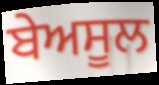
ਬੇਅਸੂਲ